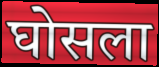
घोसला